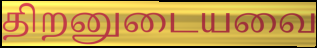
திறனுடையவை